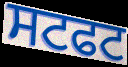
ਸਟਫਟ